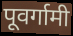
पूवर्गामी